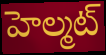
హెల్మట్